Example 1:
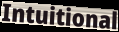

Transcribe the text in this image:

Intuitional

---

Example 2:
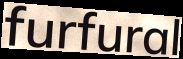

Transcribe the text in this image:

furfural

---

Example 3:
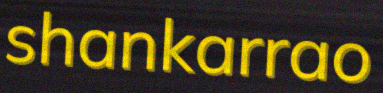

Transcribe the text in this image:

shankarrao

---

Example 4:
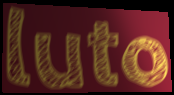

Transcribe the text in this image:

luto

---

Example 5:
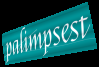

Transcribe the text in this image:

palimpsest